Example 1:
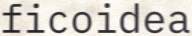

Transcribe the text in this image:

ficoidea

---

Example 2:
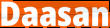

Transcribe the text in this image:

Daasan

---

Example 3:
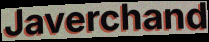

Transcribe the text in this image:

Javerchand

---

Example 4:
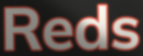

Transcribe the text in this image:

Reds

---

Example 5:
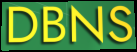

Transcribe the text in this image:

DBNS